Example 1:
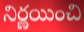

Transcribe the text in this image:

నిర్ణయించి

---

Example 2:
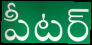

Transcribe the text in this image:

పీటర్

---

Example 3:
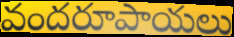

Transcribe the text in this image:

వందరూపాయలు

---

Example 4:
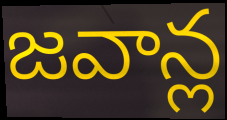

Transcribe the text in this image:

జవాన్ల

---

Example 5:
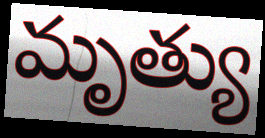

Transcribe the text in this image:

మృత్యు